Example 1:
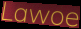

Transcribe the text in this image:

Lawoe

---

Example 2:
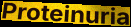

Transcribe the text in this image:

Proteinuria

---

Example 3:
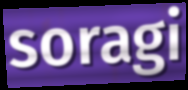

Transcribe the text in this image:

soragi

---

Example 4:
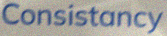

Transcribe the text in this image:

Consistancy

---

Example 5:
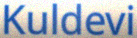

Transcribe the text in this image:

Kuldevi